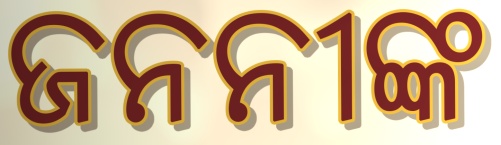
ଜନନୀଙ୍କ